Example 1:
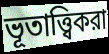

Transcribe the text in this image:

ভূতাত্ত্বিকরা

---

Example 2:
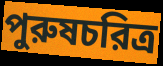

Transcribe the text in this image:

পুরুষচরিত্র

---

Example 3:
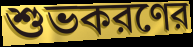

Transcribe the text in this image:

শুভকরণের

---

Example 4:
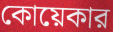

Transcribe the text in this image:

কোয়েকার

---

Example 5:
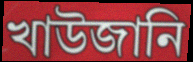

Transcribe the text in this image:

খাউজানি